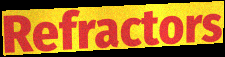
Refractors